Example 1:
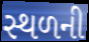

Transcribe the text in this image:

સ્થળની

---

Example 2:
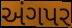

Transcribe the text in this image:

અંગપર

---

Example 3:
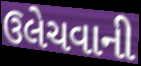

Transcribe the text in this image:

ઉલેચવાની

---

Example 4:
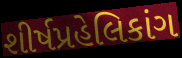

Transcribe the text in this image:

શીર્ષપ્રહેલિકાંગ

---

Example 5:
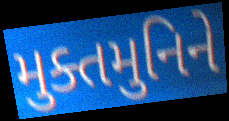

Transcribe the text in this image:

મુક્તમુનિને